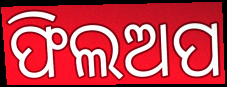
ଫିଲଅପ